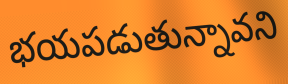
భయపడుతున్నావని